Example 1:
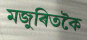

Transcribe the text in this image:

মজুৰিতকৈ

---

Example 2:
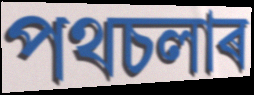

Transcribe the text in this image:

পথচলাৰ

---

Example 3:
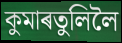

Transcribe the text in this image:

কুমাৰতুলিলৈ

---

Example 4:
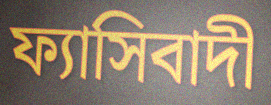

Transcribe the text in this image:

ফ্যাসিবাদী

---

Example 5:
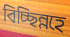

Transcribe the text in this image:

বিচ্ছিন্নহে